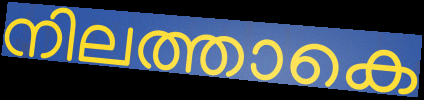
നിലത്താകെ